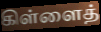
கிள்ளைத்